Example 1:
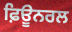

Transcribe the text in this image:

ਫ਼ਿਊਨਰਲ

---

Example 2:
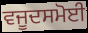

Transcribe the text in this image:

ਵਜੂਦਸਮੋਈ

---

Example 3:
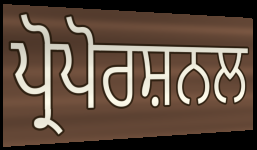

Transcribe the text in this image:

ਪ੍ਰੋਪੋਰਸ਼ਨਲ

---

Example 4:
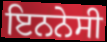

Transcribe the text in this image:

ਇਨਨੇਸੀ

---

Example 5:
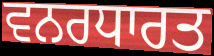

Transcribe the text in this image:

ਵਨਰਧਾਰਤ